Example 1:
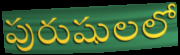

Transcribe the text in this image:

పురుషులలో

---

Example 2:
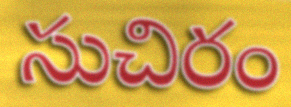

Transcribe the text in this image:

సుచిరం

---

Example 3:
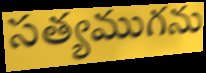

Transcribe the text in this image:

సత్యముగను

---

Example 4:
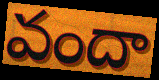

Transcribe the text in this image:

వందా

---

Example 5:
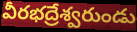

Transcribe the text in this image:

వీరభద్రేశ్వరుండు